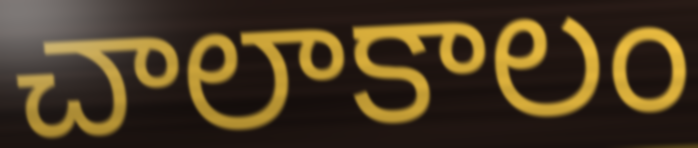
చాలాకాలం